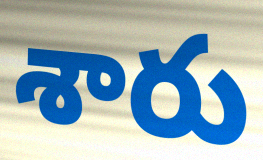
శారు